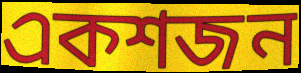
একশজন